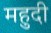
महुदी